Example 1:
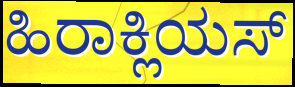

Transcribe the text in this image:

ಹಿರಾಕ್ಲಿಯಸ್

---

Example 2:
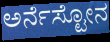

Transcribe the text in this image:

ಅರ್ನೆಸ್ಟೋನ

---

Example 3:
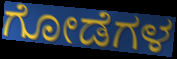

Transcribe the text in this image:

ಗೋಡೆಗಳ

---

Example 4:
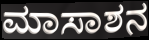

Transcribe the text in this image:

ಮಾಸಾಶನ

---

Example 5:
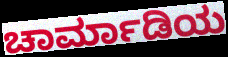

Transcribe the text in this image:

ಚಾರ್ಮಾಡಿಯ